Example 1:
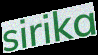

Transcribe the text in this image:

sirika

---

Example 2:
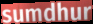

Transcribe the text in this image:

sumdhur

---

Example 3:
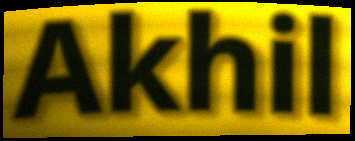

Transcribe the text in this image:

Akhil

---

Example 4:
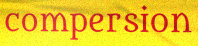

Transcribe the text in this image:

compersion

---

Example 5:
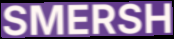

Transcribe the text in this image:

SMERSH